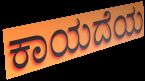
ಕಾಯದೆಯ